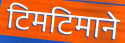
टिमटिमाने